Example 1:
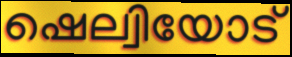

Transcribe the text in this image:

ഷെല്വിയോട്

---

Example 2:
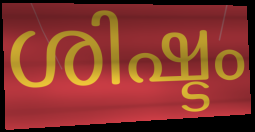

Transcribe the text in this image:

ശിഷ്ടം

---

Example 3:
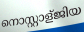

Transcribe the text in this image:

നൊസ്റ്റാള്ജിയ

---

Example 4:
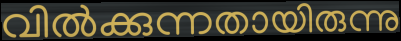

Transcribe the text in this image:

വിൽക്കുന്നതായിരുന്നു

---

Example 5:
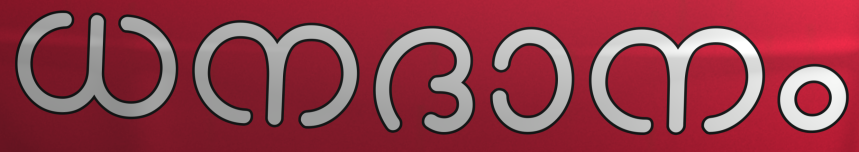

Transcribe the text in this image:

ധനദാനം